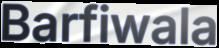
Barfiwala